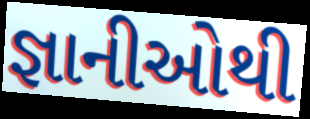
જ્ઞાનીઓથી